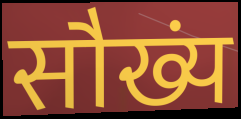
सौख्यं